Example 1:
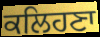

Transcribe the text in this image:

ਕਲਿਹਣਾ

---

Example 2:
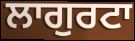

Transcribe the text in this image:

ਲਾਗੁਰਟਾ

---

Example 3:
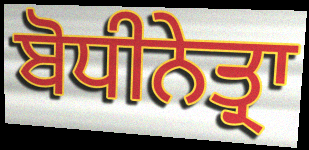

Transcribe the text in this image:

ਬੋਧੀਨੇਤ੍ਰਾ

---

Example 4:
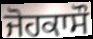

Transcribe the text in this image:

ਜੋਹਕਾਸੌ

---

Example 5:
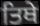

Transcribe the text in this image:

ਤਿਥੇ